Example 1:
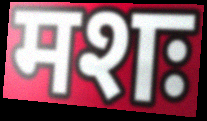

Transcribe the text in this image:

मशः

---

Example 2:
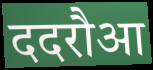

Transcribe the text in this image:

ददरौआ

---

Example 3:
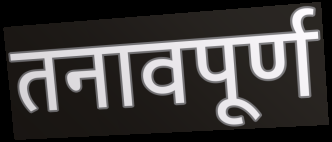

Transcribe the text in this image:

तनावपूर्ण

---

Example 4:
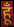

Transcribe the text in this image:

हूंँ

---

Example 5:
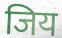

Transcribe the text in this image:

जिय